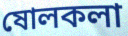
ষোলকলা